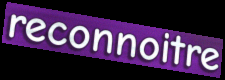
reconnoitre